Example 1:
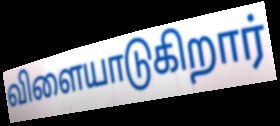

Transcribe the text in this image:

விளையாடுகிறார்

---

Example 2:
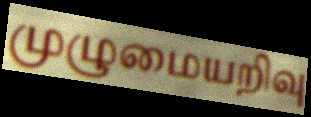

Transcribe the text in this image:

முழுமையறிவு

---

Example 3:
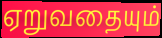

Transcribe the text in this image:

ஏறுவதையும்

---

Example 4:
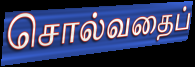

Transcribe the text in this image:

சொல்வதைப்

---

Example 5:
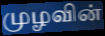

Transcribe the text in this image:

முழவின்